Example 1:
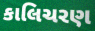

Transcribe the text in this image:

કાલિચરણ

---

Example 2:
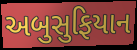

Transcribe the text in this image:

અબુસુફિયાન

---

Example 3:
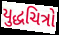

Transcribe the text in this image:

યુદ્ધચિત્રો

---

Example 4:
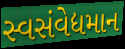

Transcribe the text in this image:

સ્વસંવેદ્યમાન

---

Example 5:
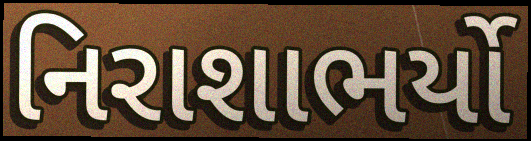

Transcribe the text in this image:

નિરાશાભર્યો